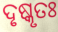
ଦୃଷ୍କୃତଃ